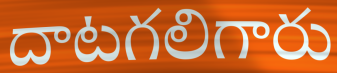
దాటగలిగారు